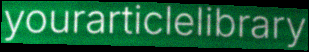
yourarticlelibrary